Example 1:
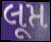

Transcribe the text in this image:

લૂપ્ત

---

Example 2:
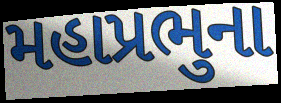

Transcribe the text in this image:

મહાપ્રભુના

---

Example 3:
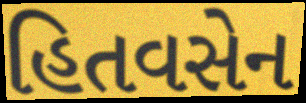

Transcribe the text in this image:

હિતવસેન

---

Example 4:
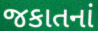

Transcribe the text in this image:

જકાતનાં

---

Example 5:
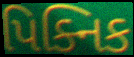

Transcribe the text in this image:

પિક્નિક